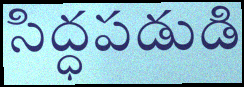
సిద్ధపడుడి